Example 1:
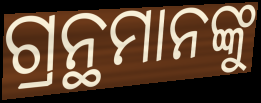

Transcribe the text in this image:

ଗ୍ରନ୍ଥମାନଙ୍କୁ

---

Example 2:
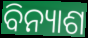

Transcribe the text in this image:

ବିନ୍ୟାଶ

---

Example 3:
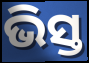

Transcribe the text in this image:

ଭିସ୍ତ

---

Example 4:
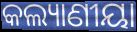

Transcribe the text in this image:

କଲ୍ୟାଣୀୟା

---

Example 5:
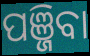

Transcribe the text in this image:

ପଞ୍ଜିବା